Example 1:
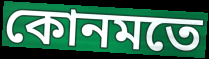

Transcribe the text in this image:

কোনমতে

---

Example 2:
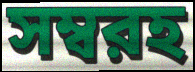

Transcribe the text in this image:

সম্বরহ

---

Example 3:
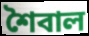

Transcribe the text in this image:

শৈবাল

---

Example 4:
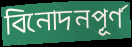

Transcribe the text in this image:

বিনোদনপূর্ণ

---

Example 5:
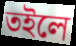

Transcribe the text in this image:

তইলে